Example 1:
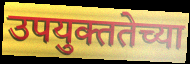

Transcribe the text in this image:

उपयुक्ततेच्या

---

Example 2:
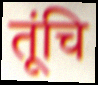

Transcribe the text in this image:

तूंचि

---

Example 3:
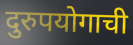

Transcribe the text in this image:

दुरुपयोगाची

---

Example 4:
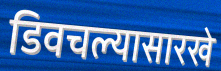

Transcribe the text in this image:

डिवचल्यासारखे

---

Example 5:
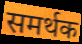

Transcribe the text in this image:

समर्थक